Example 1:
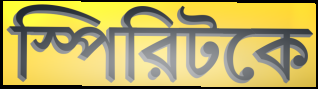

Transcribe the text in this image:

স্পিরিটকে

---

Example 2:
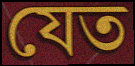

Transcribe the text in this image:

যেত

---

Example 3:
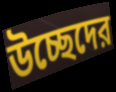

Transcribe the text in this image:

উচ্ছেদের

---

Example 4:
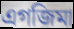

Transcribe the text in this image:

এগজিমা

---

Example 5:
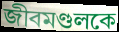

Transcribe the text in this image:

জীবমণ্ডলকে